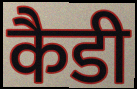
कैडी